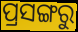
ପ୍ରସଙ୍ଗରୁ